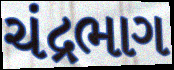
ચંદ્રભાગ